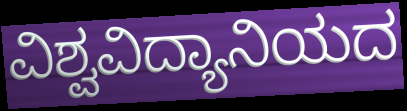
ವಿಶ್ವವಿದ್ಯಾನಿಯದ